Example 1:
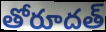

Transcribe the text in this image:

తోరూదత్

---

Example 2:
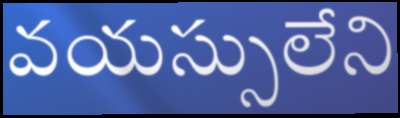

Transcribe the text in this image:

వయస్సులేని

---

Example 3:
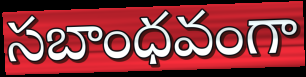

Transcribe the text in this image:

సబాంధవంగా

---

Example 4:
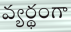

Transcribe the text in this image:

వ్యర్థంగా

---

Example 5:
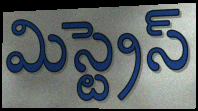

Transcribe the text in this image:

మిస్ట్రెస్